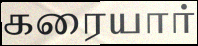
கரையார்